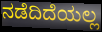
ನಡೆದಿದೆಯಲ್ಲ